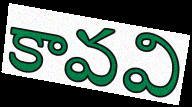
కావవి